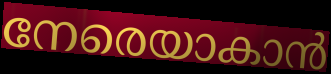
നേരെയാകാൻ